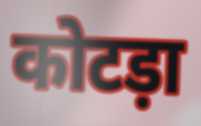
कोटड़ा